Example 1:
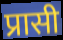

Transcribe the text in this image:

प्रासी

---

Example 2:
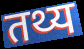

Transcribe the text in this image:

तथ्य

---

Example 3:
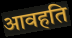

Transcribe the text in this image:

आवहति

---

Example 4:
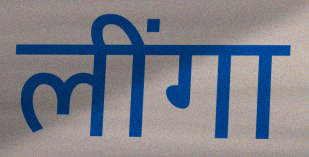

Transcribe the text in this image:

लींगा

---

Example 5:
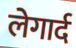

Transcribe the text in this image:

लेगार्द